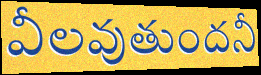
వీలవుతుందనీ